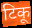
टिकू